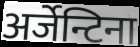
अर्जेन्टिना